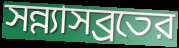
সন্ন্যাসব্রতের